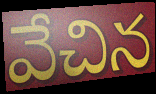
వేచిన